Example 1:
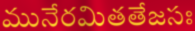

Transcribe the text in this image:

మునేరమితతేజసః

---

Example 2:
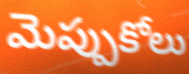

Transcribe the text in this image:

మెప్పుకోలు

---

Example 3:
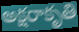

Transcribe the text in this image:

అక్షరాకృతి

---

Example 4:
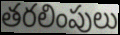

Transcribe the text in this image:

తరలింపులు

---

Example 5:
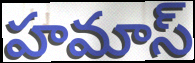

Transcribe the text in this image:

హమాస్